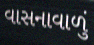
વાસનાવાળું